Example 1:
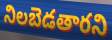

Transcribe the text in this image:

నిలబెడతారని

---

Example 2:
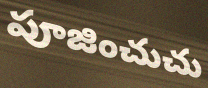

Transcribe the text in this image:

పూజించుచు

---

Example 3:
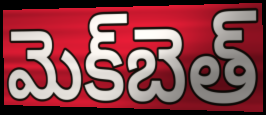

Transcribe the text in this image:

మెక్‌బెత్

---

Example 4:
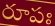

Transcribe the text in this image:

రూపః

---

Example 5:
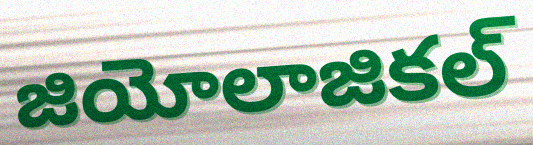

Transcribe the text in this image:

జియోలాజికల్